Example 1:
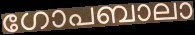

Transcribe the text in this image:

ഗോപബാലാ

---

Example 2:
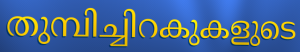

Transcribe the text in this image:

തുമ്പിച്ചിറകുകളുടെ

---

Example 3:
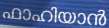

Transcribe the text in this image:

ഫാഹിയാൻ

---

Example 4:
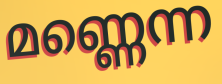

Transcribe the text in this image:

മണ്ണെന്ന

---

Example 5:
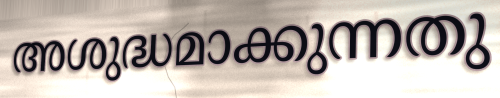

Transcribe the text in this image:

അശുദ്ധമാക്കുന്നതു